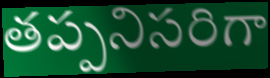
తప్పనిసరిగా